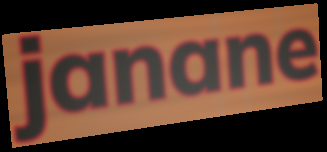
janane